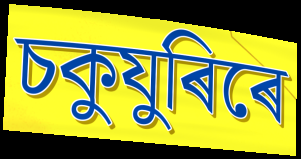
চকুযুৰিৰে